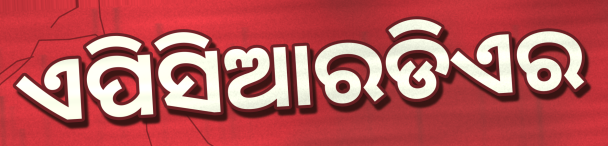
ଏପିସିଆରଡିଏର